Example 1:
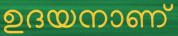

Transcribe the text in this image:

ഉദയനാണ്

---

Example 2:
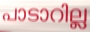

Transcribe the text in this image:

പാടാറില്ല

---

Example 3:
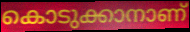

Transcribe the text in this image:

കൊടുക്കാനാണ്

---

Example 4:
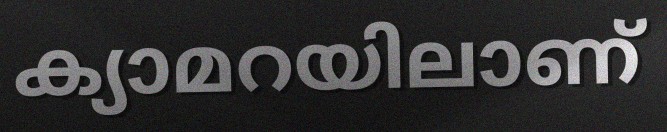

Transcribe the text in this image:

ക്യാമറയിലാണ്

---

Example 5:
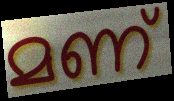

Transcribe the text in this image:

മണ്